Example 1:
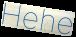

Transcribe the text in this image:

Hehe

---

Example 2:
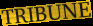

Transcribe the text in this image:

TRIBUNE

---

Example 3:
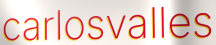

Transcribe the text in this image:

carlosvalles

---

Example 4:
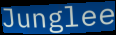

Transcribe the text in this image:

Junglee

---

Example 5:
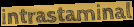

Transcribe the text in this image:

intrastaminal